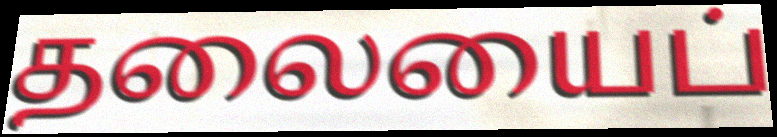
தலையைப்